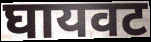
घायवट